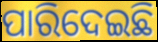
ପାରିଦେଇଛି